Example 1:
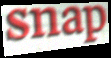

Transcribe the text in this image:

snap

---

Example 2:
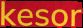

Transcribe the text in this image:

kesor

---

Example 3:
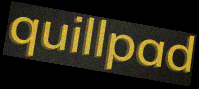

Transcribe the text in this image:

quillpad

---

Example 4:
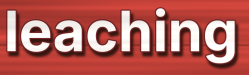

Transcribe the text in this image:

leaching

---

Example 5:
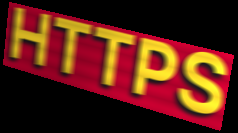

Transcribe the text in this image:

HTTPS